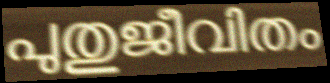
പുതുജീവിതം